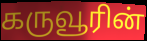
கருவூரின்